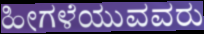
ಹೀಗಳೆಯುವವರು